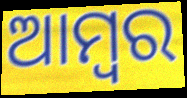
ଆମ୍ବର